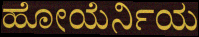
ಹೋಯೆರ್ನಿಯ